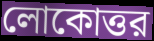
লোকোত্তর